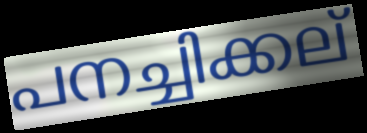
പനച്ചിക്കല്